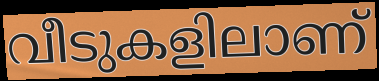
വീടുകളിലാണ്